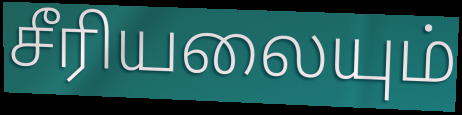
சீரியலையும்